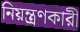
নিয়ন্ত্রণকারী